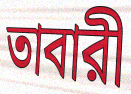
তাবারী